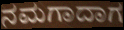
ನಮಗಾದಾಗ